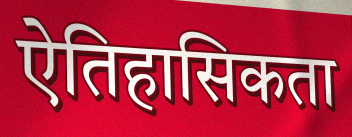
ऐतिहासिकता